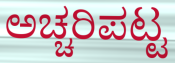
ಅಚ್ಚರಿಪಟ್ಟ